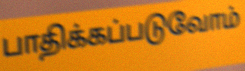
பாதிக்கப்படுவோம்